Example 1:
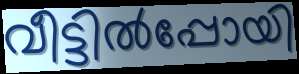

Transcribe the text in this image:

വീട്ടിൽപ്പോയി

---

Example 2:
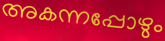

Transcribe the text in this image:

അകന്നപ്പോഴും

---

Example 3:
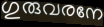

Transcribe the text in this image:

ഗുരുവരനേ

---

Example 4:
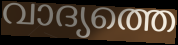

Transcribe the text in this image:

വാദ്യത്തെ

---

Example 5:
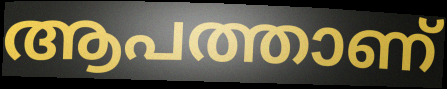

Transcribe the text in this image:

ആപത്താണ്